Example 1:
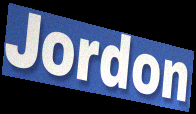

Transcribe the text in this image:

Jordon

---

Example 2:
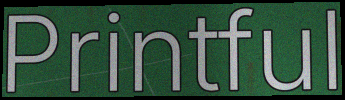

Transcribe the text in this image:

Printful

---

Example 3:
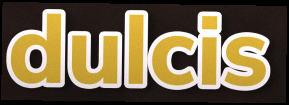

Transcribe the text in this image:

dulcis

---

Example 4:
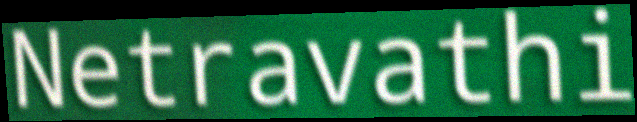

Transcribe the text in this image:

Netravathi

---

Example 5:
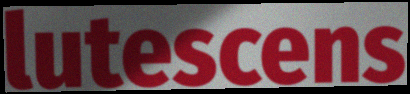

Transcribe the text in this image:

lutescens